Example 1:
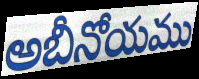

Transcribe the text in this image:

అబీనోయము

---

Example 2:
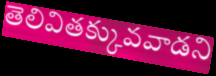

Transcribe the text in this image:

తెలివితక్కువవాడని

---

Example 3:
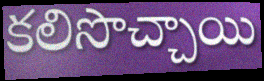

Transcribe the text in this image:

కలిసొచ్చాయి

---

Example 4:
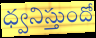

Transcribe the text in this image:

ధ్వనిస్తుందో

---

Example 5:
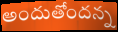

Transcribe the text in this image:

అందుతోందన్న